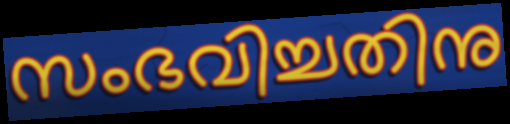
സംഭവിച്ചതിനു